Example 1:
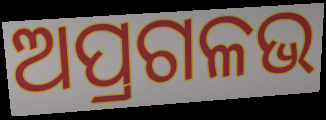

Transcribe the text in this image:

ଅପ୍ରଗଳଭ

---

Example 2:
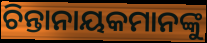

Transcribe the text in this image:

ଚିନ୍ତାନାୟକମାନଙ୍କୁ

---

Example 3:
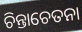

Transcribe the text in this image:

ଚିନ୍ତାଚେତନା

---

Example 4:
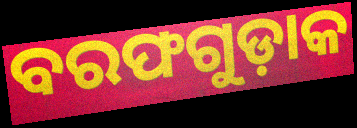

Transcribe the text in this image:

ବରଫଗୁଡ଼ାକ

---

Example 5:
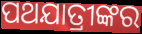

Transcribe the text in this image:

ପଥଯାତ୍ରୀଙ୍କର